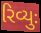
રિવ્યુઃ